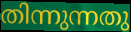
തിന്നുന്നതു